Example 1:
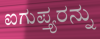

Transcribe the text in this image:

ಐಗುಪ್ತ್ಯರನ್ನು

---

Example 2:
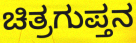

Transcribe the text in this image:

ಚಿತ್ರಗುಪ್ತನ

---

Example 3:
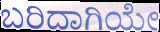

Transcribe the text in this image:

ಬರಿದಾಗಿಯೇ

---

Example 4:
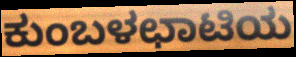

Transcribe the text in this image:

ಕುಂಬಳಛಾಟಿಯ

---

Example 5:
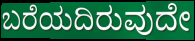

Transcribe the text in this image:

ಬರೆಯದಿರುವುದೇ